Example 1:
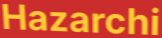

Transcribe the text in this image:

Hazarchi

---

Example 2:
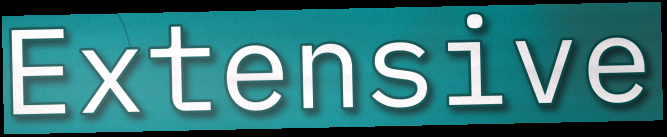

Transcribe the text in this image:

Extensive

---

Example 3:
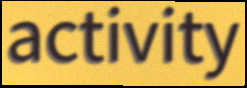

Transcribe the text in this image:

activity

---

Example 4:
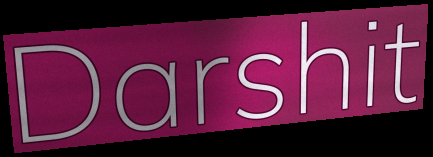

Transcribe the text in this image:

Darshit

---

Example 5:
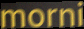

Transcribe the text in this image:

morni